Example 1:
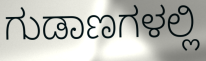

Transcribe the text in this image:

ಗುಡಾಣಗಳಲ್ಲಿ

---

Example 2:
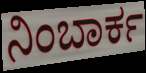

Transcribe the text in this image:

ನಿಂಬಾರ್ಕ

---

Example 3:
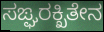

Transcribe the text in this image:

ಸಙ್ಘರಕ್ಖಿತೇನ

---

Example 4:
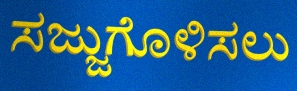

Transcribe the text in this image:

ಸಜ್ಜುಗೊಳಿಸಲು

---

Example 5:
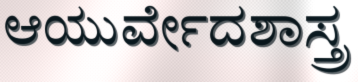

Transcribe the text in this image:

ಆಯುರ್ವೇದಶಾಸ್ತ್ರ